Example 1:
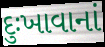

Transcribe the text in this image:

દુઃખાવાનાં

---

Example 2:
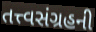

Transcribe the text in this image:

તત્ત્વસંગ્રહની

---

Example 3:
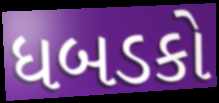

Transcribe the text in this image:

ધબડકો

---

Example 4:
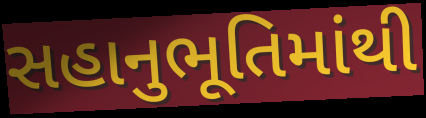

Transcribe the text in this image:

સહાનુભૂતિમાંથી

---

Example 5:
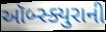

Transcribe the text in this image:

ઑબ્સ્ક્યુરાની